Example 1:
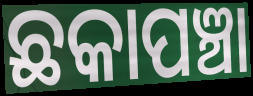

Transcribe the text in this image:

ଛକାପଞ୍ଚା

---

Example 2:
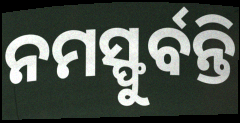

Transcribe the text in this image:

ନମସ୍ଫୁର୍ବନ୍ତି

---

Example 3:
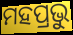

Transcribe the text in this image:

ମହପ୍ରଭୁ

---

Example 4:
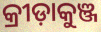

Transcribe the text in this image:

କ୍ରୀଡ଼ାକୁଞ୍ଜ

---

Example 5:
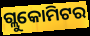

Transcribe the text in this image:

ଗ୍ଲୁକୋମିଟର